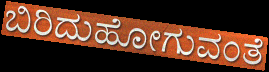
ಬಿರಿದುಹೋಗುವಂತೆ